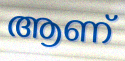
ആണ്